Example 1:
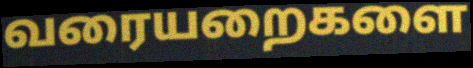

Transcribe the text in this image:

வரையறைகளை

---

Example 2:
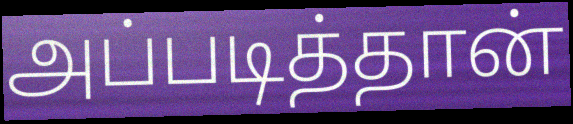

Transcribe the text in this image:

அப்படித்தான்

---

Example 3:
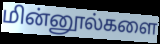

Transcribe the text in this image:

மின்னூல்களை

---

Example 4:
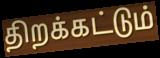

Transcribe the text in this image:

திறக்கட்டும்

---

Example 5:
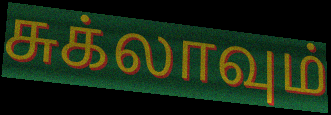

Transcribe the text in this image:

சுக்லாவும்